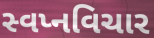
સ્વપ્નવિચાર